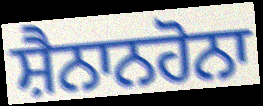
ਸ਼ੈਨਾਨਹੋਨਾ